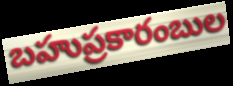
బహుప్రకారంబుల